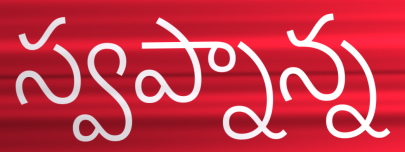
స్వప్నాన్న